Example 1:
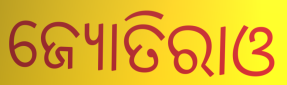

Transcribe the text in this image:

ଜ୍ୟୋତିରାଓ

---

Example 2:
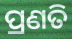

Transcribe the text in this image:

ପ୍ରଣତି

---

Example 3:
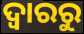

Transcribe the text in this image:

ଦ୍ଵାରରୁ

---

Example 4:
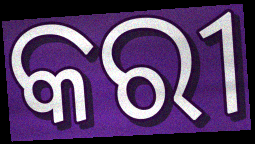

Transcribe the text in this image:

କରୀ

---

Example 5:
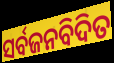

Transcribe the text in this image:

ସର୍ବଜନବିଦିତ